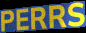
PERRS